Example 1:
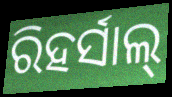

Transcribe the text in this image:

ରିହର୍ସାଲ୍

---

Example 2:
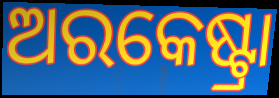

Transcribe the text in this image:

ଅରକେଷ୍ଟ୍ରା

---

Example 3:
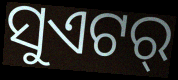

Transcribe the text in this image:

ସୁଏଟର୍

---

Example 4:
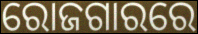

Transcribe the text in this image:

ରୋଜଗାରରେ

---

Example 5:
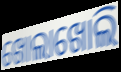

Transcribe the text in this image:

ଖୋଲାଖୋଲି